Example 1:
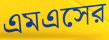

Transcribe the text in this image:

এমএসের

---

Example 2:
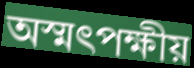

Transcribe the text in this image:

অস্মৎপক্ষীয়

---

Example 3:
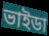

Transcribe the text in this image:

ভাইডা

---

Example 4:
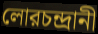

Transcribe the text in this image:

লোরচন্দ্রানী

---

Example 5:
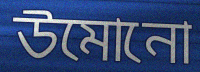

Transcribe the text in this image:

উমোনো